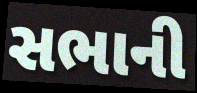
સભાની